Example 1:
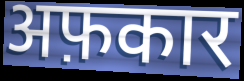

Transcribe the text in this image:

अफ़कार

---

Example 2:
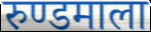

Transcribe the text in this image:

रुण्डमाला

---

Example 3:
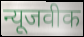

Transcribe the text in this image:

न्यूजवीक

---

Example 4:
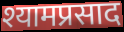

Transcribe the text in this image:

श्यामप्रसाद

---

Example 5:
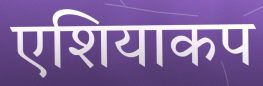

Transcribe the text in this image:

एशियाकप